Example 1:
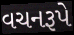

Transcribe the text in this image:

વચનરૂપે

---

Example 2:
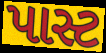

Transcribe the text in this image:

પાસ્ટ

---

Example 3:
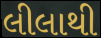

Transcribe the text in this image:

લીલાથી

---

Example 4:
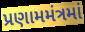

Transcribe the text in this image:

પ્રણામમંત્રમાં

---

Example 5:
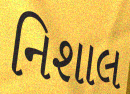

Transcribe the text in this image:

નિશાલ